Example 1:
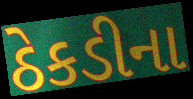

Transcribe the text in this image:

ઠેકડીના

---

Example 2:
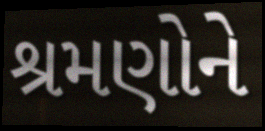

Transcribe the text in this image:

શ્રમણોને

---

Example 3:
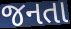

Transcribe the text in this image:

જનતા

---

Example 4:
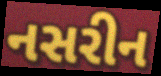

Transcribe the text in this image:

નસરીન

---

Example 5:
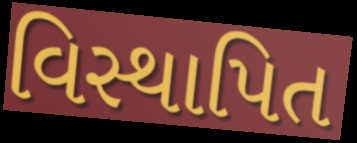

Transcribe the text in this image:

વિસ્થાપિત